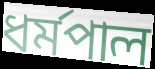
ধর্মপাল